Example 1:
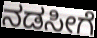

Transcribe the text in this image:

ನಡಸೀಗೆ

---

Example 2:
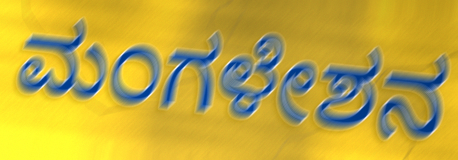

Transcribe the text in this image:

ಮಂಗಳೇಶನ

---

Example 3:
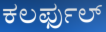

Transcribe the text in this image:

ಕಲರ್ಫುಲ್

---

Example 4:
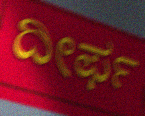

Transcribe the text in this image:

ದೀರ್ಫ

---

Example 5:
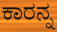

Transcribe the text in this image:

ಕಾರನ್ನ